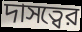
দাসত্বের